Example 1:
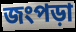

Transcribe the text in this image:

জংপড়া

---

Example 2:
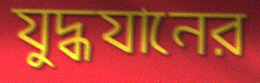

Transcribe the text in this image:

যুদ্ধযানের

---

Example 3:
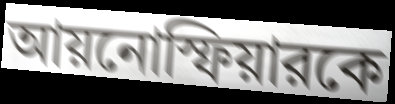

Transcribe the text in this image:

আয়নোস্ফিয়ারকে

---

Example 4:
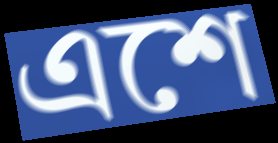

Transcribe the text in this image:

এশে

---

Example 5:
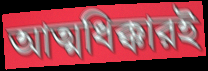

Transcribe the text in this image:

আত্মধিক্কারই